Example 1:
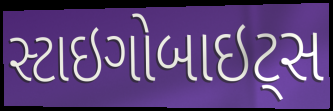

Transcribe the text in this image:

સ્ટાઇગોબાઇટ્સ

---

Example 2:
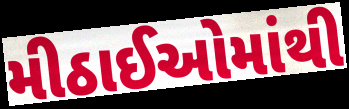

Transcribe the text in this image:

મીઠાઈઓમાંથી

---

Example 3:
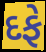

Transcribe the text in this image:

દફે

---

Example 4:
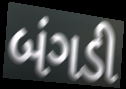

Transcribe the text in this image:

બંગડી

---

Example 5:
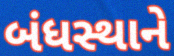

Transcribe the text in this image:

બંધસ્થાને